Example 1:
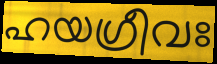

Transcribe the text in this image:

ഹയഗ്രീവഃ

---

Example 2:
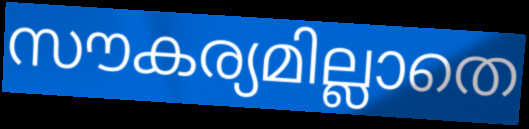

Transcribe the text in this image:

സൗകര്യമില്ലാതെ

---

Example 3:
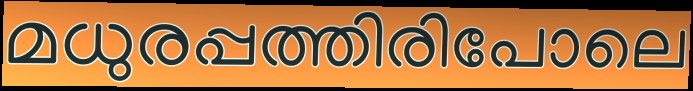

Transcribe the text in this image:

മധുരപ്പത്തിരിപോലെ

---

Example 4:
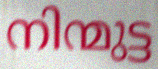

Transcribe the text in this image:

നിന്മുട്ട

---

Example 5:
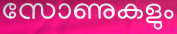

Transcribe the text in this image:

സോണുകളും